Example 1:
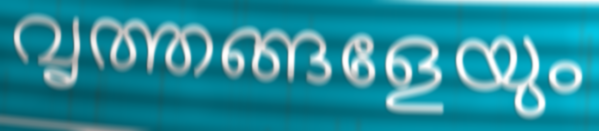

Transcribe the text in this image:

വൃത്തങ്ങളേയും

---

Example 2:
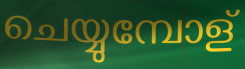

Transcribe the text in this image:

ചെയ്യുമ്പോള്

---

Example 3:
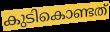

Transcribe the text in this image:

കുടികൊണ്ടത്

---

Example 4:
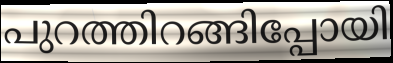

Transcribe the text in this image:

പുറത്തിറങ്ങിപ്പോയി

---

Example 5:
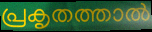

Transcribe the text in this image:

പ്രകൃതത്താൽ